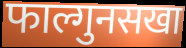
फाल्गुनसखा